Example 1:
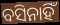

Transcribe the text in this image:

ବସିନାହିଁ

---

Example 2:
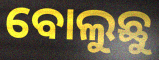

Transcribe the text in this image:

ବୋଲୁଛୁ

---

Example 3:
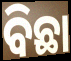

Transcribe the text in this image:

ବିଛା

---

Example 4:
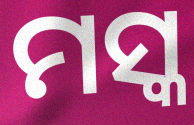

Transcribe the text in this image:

ମସ୍କ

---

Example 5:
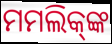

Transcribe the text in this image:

ମମଲିକ୍‌ଙ୍କ